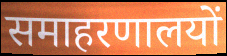
समाहरणालयों